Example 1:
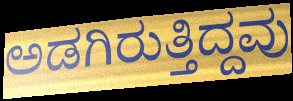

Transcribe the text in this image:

ಅಡಗಿರುತ್ತಿದ್ದವು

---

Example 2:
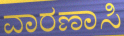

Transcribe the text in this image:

ವಾರಣಾಸಿ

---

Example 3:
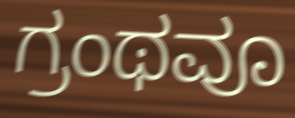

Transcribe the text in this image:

ಗ್ರಂಥವೂ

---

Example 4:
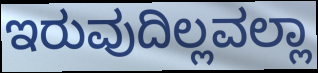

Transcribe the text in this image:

ಇರುವುದಿಲ್ಲವಲ್ಲಾ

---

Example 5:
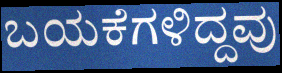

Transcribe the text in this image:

ಬಯಕೆಗಳಿದ್ದವು